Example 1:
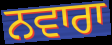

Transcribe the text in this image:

ਨਵਾਰਾ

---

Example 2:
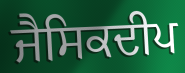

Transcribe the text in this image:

ਜੈਸਿਕਦੀਪ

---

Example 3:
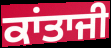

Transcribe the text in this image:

ਕਾਂਤਾਜੀ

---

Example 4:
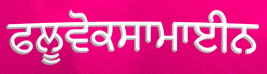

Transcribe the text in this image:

ਫਲੂਵੋਕਸਾਮਾਈਨ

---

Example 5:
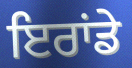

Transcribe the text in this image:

ਇਰਾਂਡੇ